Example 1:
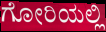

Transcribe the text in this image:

ಗೋರಿಯಲ್ಲಿ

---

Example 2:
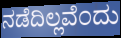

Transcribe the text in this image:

ನಡೆದಿಲ್ಲವೆಂದು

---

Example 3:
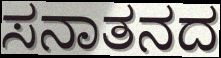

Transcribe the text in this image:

ಸನಾತನದ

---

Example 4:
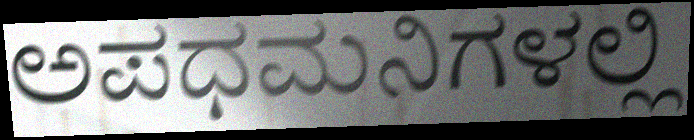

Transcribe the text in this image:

ಅಪಧಮನಿಗಳಲ್ಲಿ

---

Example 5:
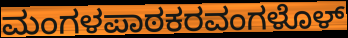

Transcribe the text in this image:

ಮಂಗಳಪಾಠಕರವಂಗಳೊಳ್